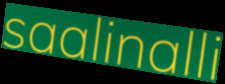
saalinalli